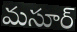
మసూర్